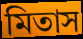
মিতাস